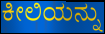
ಕೀಲಿಯನ್ನು